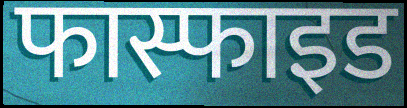
फास्फाइड